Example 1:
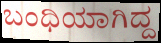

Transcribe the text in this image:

ಬಂಧಿಯಾಗಿದ್ದ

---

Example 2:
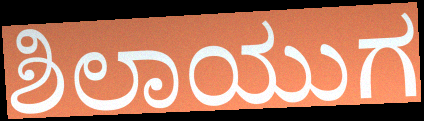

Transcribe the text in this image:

ಶಿಲಾಯುಗ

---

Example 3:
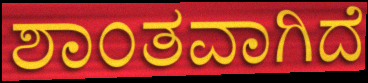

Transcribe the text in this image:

ಶಾಂತವಾಗಿದೆ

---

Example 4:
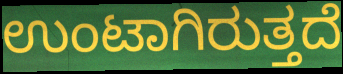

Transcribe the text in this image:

ಉಂಟಾಗಿರುತ್ತದೆ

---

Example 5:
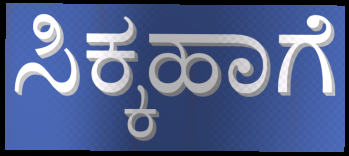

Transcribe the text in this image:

ಸಿಕ್ಕಹಾಗೆ